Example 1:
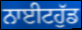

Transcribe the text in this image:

ਨਾਈਟਹੁੱਡ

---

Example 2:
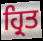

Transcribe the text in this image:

ਹ੍ਰਿਤ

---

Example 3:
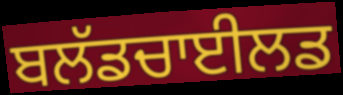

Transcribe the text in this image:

ਬਲੱਡਚਾਈਲਡ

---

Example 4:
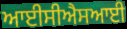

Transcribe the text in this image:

ਆਈਸੀਐਸਆਈ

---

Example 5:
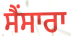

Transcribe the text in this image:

ਸੈਂਸਾਰਾ